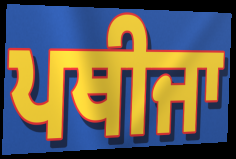
ਪਥੀਜਾ